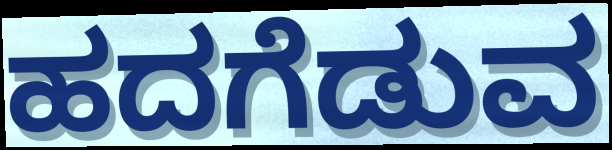
ಹದಗೆಡುವ